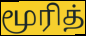
மூரித்